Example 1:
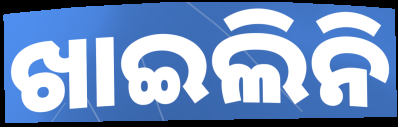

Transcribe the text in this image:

ଖାଇଲିନି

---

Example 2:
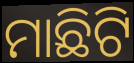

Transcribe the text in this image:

ମାଛିଟି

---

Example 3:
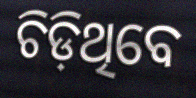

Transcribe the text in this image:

ଚିଡ଼ିଥିବେ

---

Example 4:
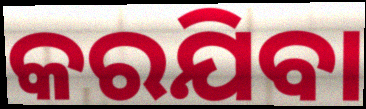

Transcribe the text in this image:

କରଯିବା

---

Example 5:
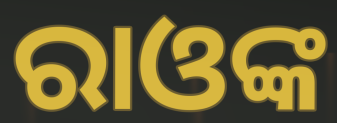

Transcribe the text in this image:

ରାଓଙ୍କ